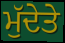
ਮੁੱਦੇਤੇ